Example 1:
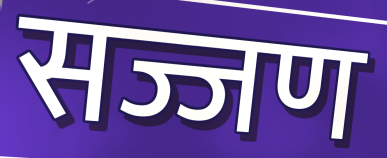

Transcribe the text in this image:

सज्जण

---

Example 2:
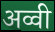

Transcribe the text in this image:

अव्वी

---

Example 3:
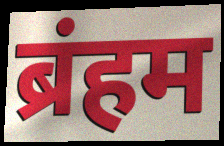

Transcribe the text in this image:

ब्रंहम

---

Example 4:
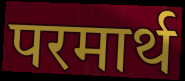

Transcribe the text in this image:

परमार्थ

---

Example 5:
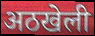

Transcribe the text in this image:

अठखेली